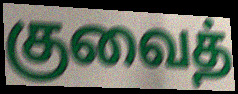
குவைத்